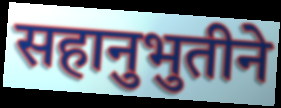
सहानुभुतीने